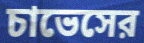
চাভেসের